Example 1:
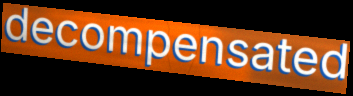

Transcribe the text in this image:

decompensated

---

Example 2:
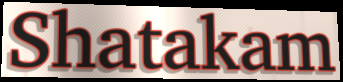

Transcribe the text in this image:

Shatakam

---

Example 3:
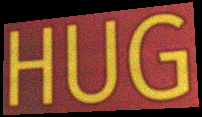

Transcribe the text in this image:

HUG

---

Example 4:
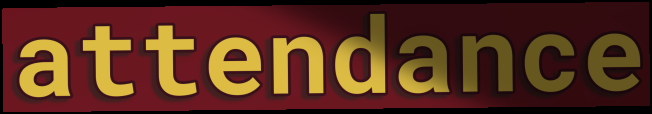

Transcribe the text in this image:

attendance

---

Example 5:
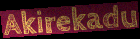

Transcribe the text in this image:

Akirekadu